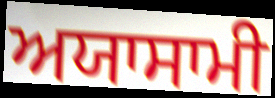
ਅਯਾਸਾਮੀ